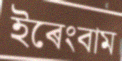
ইৰেংবাম